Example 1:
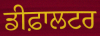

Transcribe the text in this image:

ਡੀਫ਼ਾਲਟਰ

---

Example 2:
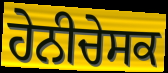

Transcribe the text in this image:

ਹੇਨੀਚੇਸਕ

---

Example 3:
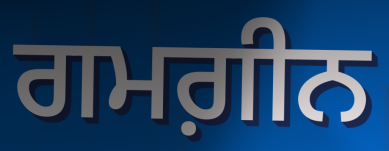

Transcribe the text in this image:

ਗਮਗ਼ੀਨ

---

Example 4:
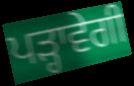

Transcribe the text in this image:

ਪੜ੍ਹਾਵੇਗੀ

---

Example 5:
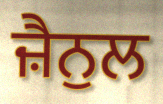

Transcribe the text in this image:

ਜ਼ੈਨੁਲ